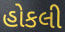
હોકલી